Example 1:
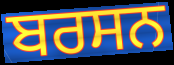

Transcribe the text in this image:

ਬਰਸਨ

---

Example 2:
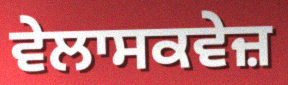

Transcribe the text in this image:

ਵੇਲਾਸਕਵੇਜ਼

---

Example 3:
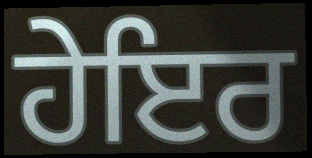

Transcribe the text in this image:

ਹੇਇਰ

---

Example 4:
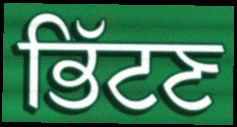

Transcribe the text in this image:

ਭਿੱਟਣ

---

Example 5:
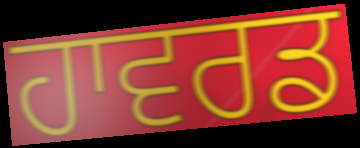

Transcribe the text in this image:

ਹਾਵਰਡ